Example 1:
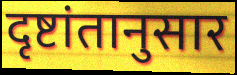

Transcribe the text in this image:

दृष्टांतानुसार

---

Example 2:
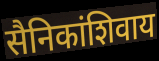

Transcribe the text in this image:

सैनिकांशिवाय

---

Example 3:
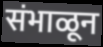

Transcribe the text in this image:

संभाळून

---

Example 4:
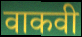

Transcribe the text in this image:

वाकवी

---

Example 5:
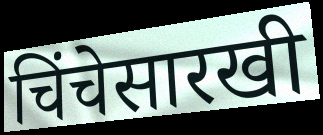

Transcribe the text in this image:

चिंचेसारखी